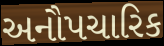
અનૌપચારિક